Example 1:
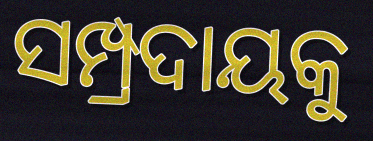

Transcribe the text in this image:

ସମ୍ପ୍ରଦାୟକୁ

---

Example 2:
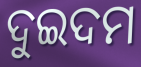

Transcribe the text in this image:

ଦୁଇଦମ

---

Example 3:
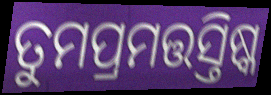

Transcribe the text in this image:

ତୁମପ୍ରମତ୍ତସ୍ତିଷ୍କ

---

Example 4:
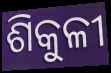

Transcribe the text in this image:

ଶିକୁଳୀ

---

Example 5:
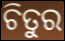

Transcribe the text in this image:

ଚିତୁର